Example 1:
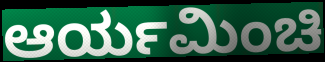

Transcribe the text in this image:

ಆರ್ಯಮಿಂಚಿ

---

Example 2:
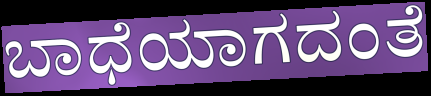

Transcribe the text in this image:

ಬಾಧೆಯಾಗದಂತೆ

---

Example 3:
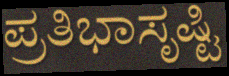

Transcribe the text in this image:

ಪ್ರತಿಭಾಸೃಷ್ಟಿ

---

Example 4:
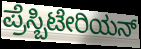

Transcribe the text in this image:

ಪ್ರೆಸ್ಬಿಟೇರಿಯನ್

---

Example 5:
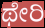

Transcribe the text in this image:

ಥೇರಿ